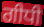
ਗੀਧੀ